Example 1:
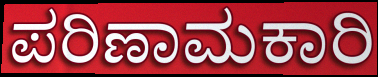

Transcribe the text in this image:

ಪರಿಣಾಮಕಾರಿ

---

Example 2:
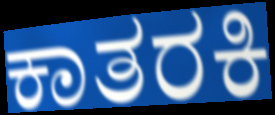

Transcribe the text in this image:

ಕಾತರಕಿ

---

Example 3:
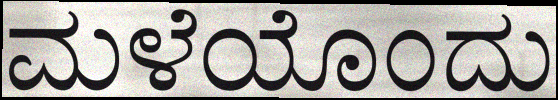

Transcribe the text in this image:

ಮಳೆಯೊಂದು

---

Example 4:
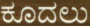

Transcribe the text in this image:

ಕೂದಲು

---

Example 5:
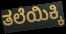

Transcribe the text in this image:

ತಲೆಯಿಕ್ಕಿ